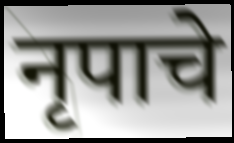
नृपाचे